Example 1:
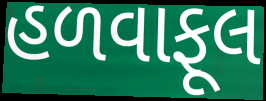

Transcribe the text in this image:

હળવાફૂલ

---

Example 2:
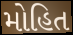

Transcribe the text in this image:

મોહિત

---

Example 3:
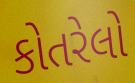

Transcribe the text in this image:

કોતરેલો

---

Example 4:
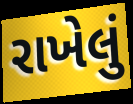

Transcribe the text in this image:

રાખેલું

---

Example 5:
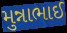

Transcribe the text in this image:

મુન્નાભાઈ